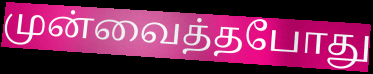
முன்வைத்தபோது